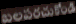
బలపరచుకోండి